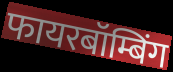
फायरबॉम्बिंग